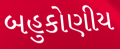
બહુકોણીય